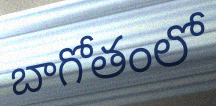
బాగోతంలో